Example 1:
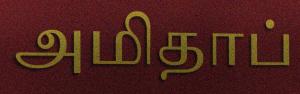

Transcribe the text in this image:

அமிதாப்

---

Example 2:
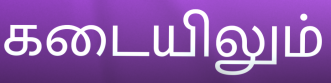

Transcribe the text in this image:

கடையிலும்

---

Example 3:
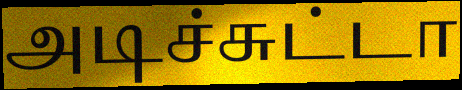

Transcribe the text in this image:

அடிச்சுட்டா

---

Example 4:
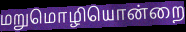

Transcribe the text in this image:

மறுமொழியொன்றை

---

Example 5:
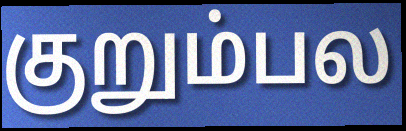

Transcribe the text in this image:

குறும்பல